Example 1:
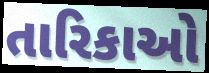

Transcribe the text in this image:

તારિકાઓ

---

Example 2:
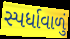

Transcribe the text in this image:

સ્પર્ધાવાળું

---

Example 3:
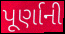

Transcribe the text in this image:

પૂર્ણાની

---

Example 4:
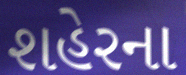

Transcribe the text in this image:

શહેરના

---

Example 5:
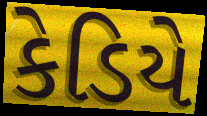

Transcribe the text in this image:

કેડિયે